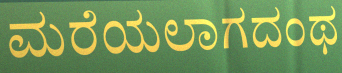
ಮರೆಯಲಾಗದಂಥ